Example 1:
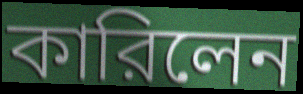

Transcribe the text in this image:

কারিলেন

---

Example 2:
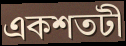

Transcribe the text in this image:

একশতটী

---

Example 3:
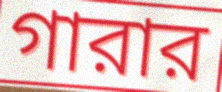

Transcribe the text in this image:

গারার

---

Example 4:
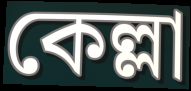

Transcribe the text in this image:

কেল্লা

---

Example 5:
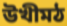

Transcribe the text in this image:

উখীমঠ